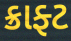
ક્રાફ્ટ